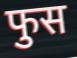
फुस